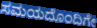
ಸಮಯದೊಂದಿಗೇ